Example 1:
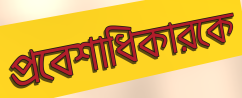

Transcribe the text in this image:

প্রবেশাধিকারকে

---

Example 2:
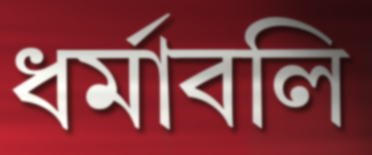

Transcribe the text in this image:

ধর্মাবলি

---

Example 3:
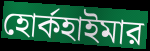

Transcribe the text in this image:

হোর্কহাইমার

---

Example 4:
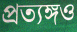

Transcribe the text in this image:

প্রত্যঙ্গও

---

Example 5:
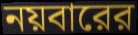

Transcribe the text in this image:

নয়বারের